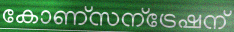
കോണ്സന്ട്രേഷന്